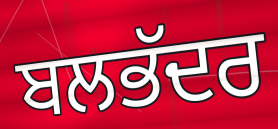
ਬਲਭੱਦਰ